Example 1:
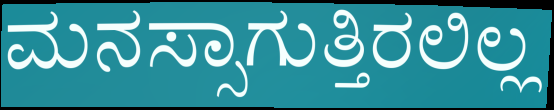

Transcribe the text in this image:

ಮನಸ್ಸಾಗುತ್ತಿರಲಿಲ್ಲ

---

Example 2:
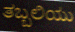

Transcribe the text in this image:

ತಬ್ಬಲಿಯು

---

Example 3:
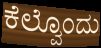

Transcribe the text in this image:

ಕೆಲ್ವೊಂದು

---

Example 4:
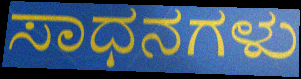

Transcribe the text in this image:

ಸಾಧನಗಳು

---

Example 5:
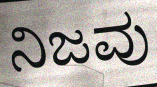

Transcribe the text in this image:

ನಿಜವು